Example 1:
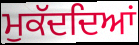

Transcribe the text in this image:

ਮੁਕੱਦਦਿਆਂ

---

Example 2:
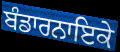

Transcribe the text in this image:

ਬੰਡਾਰਨਾਇਕੇ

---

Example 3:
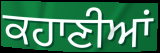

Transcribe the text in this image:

ਕਹਾਣੀਆਂ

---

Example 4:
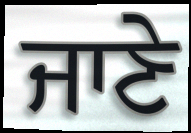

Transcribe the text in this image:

ਜਾਣੇ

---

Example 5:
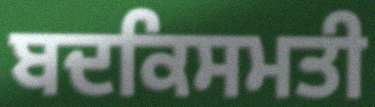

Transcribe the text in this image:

ਬਦਕਿਸਮਤੀ